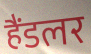
हैंडलर